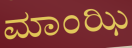
ಮಾಂಝಿ